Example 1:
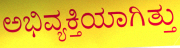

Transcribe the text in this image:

ಅಭಿವ್ಯಕ್ತಿಯಾಗಿತ್ತು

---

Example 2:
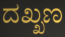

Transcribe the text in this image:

ದಖ್ಖಣ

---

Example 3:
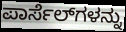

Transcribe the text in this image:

ಪಾರ್ಸೆಲ್‌ಗಳನ್ನು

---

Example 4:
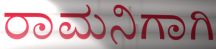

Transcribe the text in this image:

ರಾಮನಿಗಾಗಿ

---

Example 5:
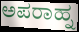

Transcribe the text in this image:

ಅಪರಾಹ್ನ